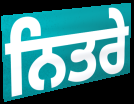
ਨਿਤਰੇ